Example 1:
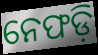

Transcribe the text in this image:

ନେଫଡ଼ି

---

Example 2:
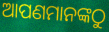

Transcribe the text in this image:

ଆପଣମାନଙ୍କଠୁ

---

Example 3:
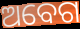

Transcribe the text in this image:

ଅବେଗ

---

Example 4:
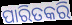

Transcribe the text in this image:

ପାରିତକରି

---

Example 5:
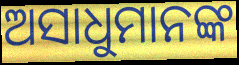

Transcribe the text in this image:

ଅସାଧୁମାନଙ୍କ